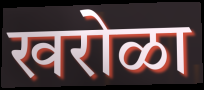
खरोळा